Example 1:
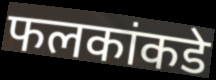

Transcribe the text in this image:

फलकांकडे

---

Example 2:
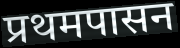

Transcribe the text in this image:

प्रथमपासन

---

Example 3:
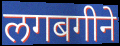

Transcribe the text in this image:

लगबगीने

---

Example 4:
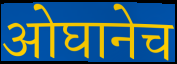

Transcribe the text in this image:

ओघानेच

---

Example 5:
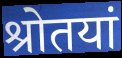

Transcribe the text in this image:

श्रोतयां